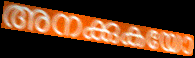
അനക്കുകയോ